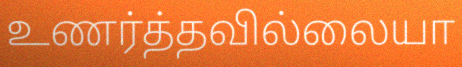
உணர்த்தவில்லையா